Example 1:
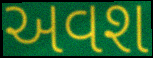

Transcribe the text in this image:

અવશ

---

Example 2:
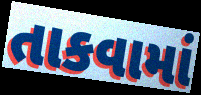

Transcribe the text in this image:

તાકવામાં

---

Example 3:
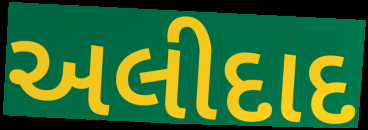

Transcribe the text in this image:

અલીદાદ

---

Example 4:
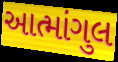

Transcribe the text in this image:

આત્માંગુલ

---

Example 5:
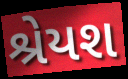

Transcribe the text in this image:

શ્રેયશ